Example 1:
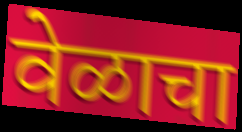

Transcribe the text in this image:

वेळाचा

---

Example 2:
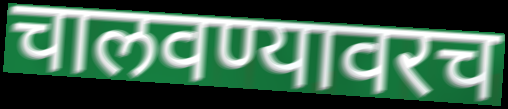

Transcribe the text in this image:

चालवण्यावरच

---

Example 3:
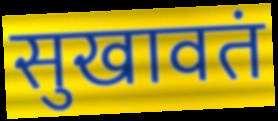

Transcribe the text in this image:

सुखावतं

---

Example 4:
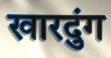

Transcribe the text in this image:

खारदुंग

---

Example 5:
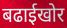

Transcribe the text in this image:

बढाईखोर